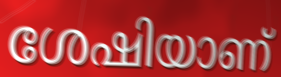
ശേഷിയാണ്